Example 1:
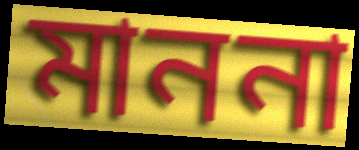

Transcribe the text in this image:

মাননা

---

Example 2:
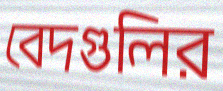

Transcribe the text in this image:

বেদগুলির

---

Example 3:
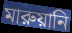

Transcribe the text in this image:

মারুয়ানি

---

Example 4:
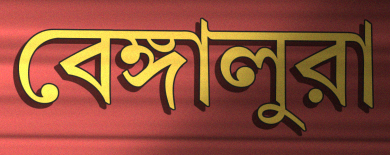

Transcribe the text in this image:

বেঙ্গালুরা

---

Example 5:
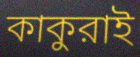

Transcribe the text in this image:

কাকুরাই